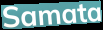
Samata